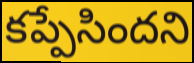
కప్పేసిందని